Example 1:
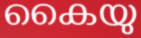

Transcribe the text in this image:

കൈയു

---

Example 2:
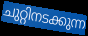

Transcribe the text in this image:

ചുറ്റിനടക്കുന്ന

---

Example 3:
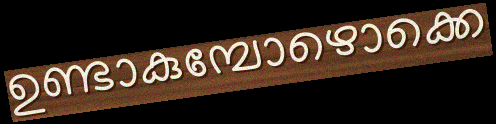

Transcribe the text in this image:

ഉണ്ടാകുമ്പോഴൊക്കെ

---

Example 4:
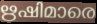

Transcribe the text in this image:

ഋഷിമാരെ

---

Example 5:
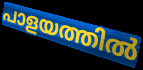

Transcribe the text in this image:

പാളയത്തിൽ